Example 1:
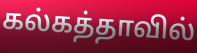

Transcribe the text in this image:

கல்கத்தாவில்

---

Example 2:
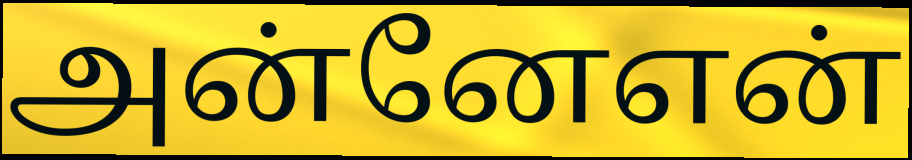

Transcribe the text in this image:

அன்னேஎன்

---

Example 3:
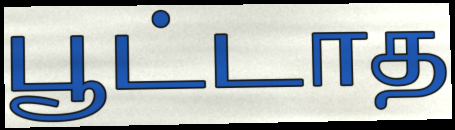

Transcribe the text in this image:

பூட்டாத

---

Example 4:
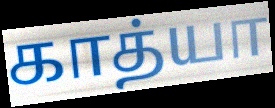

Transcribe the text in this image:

காத்யா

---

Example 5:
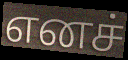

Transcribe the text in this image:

எனச்